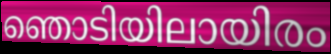
ഞൊടിയിലായിരം